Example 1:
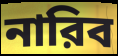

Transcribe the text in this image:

নারিব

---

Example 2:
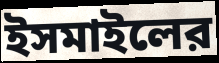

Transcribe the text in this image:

ইসমাইলের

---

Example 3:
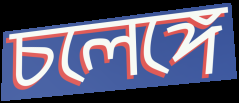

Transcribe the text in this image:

চলেঙ্গে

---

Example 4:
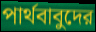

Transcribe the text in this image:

পার্থবাবুদের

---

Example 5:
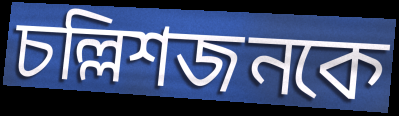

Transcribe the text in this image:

চল্লিশজনকে